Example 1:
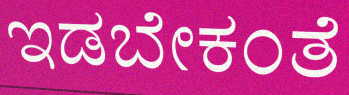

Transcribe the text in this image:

ಇಡಬೇಕಂತೆ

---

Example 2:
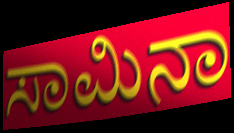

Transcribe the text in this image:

ಸಾಮಿನಾ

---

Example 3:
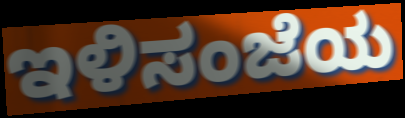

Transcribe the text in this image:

ಇಳಿಸಂಜೆಯ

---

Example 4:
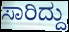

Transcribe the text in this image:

ಸಾರಿದ್ದು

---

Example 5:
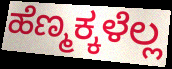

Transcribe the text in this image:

ಹೆಣ್ಮಕ್ಕಳೆಲ್ಲ